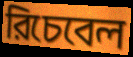
রিচেবেল